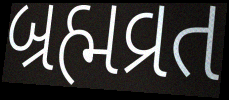
બ્રહ્મવ્રત